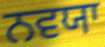
ਨਵਯਾ